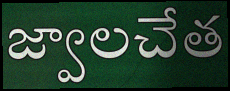
జ్వాలచేత